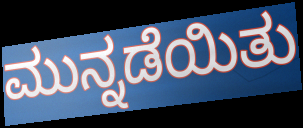
ಮುನ್ನಡೆಯಿತು